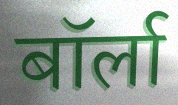
बॉर्ला